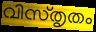
വിസ്തൃതം